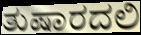
ತುಷಾರದಲಿ